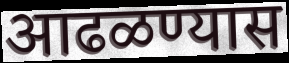
आढळण्यास